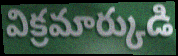
విక్రమార్కుడి